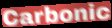
Carbonic